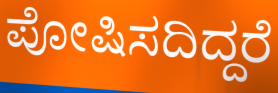
ಪೋಷಿಸದಿದ್ದರೆ